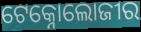
ଟେକ୍ନୋଲୋଜୀର